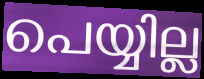
പെയ്യില്ല